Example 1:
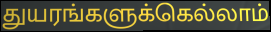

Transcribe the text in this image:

துயரங்களுக்கெல்லாம்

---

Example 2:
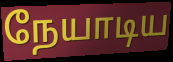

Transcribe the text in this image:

நேயாடிய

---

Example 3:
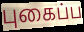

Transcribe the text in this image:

புகைப்ப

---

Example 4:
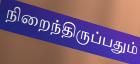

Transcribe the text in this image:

நிறைந்திருப்பதும்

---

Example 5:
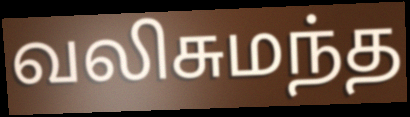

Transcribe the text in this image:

வலிசுமந்த